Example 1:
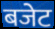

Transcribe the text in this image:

बजेट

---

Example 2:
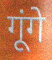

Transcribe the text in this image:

गूंगे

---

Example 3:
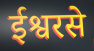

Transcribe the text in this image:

ईश्वरसे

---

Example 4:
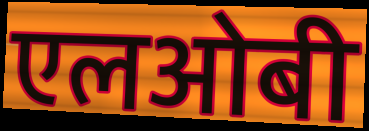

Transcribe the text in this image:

एलओबी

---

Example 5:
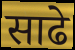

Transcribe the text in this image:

साढे